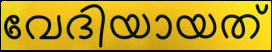
വേദിയായത്